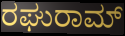
ರಘುರಾಮ್